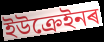
ইউক্ৰেইনৰ